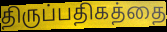
திருப்பதிகத்தை